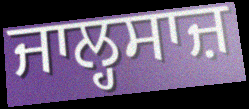
ਜਾਲ੍ਹਸਾਜ਼